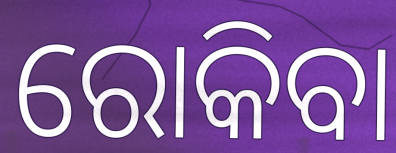
ରୋକିବା